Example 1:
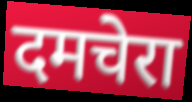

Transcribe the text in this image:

दमचेरा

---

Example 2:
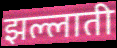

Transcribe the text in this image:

झल्लाती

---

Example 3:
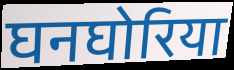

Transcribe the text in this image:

घनघोरिया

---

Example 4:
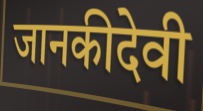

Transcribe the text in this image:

जानकीदेवी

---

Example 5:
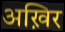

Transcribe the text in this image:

अख़िर